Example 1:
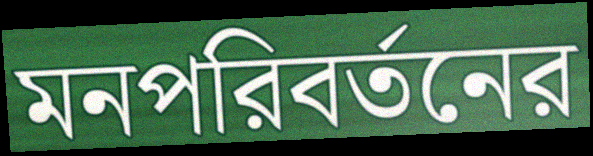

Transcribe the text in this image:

মনপরিবর্তনের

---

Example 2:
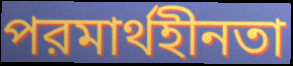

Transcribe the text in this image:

পরমার্থহীনতা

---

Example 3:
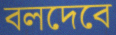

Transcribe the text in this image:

বলদেবে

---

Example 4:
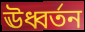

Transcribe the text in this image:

ঊধ্বর্তন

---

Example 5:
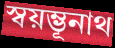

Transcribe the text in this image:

স্বয়ম্ভূনাথ